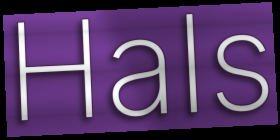
Hals